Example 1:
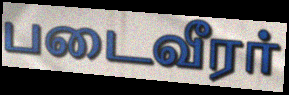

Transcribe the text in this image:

படைவீரர்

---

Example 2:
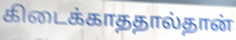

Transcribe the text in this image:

கிடைக்காததால்தான்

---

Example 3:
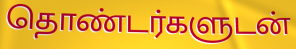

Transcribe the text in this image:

தொண்டர்களுடன்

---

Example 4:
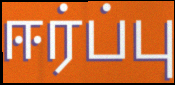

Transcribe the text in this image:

ஈர்ப்பு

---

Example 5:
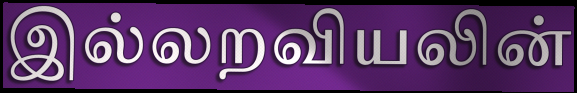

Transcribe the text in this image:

இல்லறவியலின்